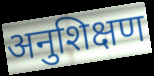
अनुशिक्षण